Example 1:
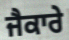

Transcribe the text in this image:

ਜੈਕਾਰੇ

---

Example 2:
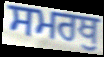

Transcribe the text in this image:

ਸਮਰਥੁ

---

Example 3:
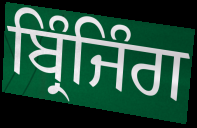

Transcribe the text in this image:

ਬ੍ਰਿੰਜਿੰਗ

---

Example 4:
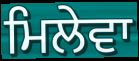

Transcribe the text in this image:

ਮਿਲੇਵਾ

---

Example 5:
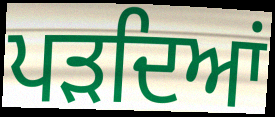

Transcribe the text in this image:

ਪੜਦਿਆਂ